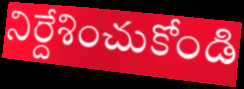
నిర్దేశించుకోండి